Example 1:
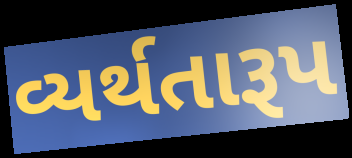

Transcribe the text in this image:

વ્યર્થતારૂપ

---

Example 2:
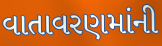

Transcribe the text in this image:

વાતાવરણમાંની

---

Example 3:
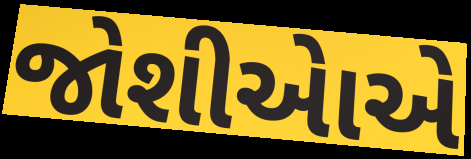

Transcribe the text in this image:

જોશીએાએ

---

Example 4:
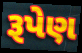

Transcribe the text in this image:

રૂપેણ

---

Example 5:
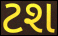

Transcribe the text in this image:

ટશ